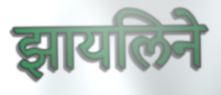
झायलिने